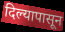
दिल्यापासून